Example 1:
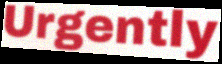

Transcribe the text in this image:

Urgently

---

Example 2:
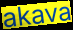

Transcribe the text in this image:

akava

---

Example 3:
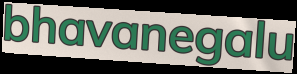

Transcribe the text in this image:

bhavanegalu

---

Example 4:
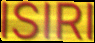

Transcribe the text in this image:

ISIRI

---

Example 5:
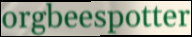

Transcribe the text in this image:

orgbeespotter